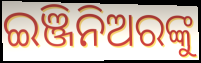
ଇଞ୍ଜିନିଅରଙ୍କୁ